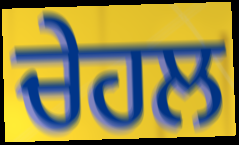
ਚੇਹਲ